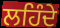
ਲਹਿੰਦੇ